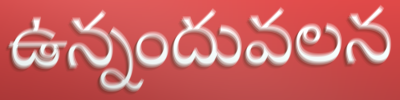
ఉన్నందువలన